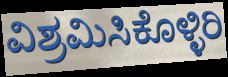
ವಿಶ್ರಮಿಸಿಕೊಳ್ಳಿರಿ